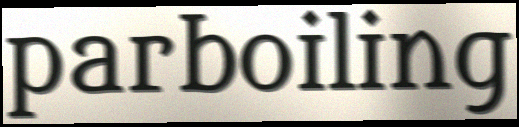
parboiling